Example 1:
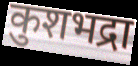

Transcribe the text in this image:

कुशभद्रा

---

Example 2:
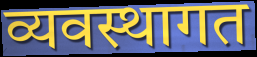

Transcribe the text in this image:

व्यवस्थागत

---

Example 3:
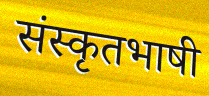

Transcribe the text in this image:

संस्कृतभाषी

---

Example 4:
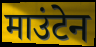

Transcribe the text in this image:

माउंटेन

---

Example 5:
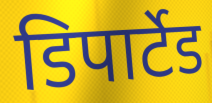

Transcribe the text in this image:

डिपार्टेड